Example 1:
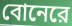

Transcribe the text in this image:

বোনেরে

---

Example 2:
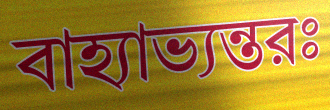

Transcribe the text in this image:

বাহ্যাভ্যন্তরঃ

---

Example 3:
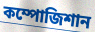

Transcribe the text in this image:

কম্পোজিশান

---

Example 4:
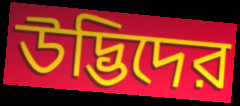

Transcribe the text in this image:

উদ্ভিদের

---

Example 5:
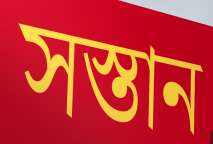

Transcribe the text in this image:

সস্তান